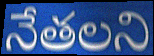
నేతలని